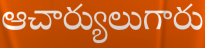
ఆచార్యులుగారు